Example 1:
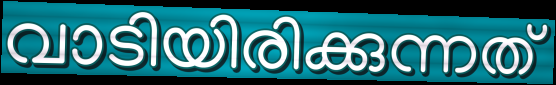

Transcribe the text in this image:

വാടിയിരിക്കുന്നത്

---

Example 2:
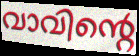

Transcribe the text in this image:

വാവിന്റെ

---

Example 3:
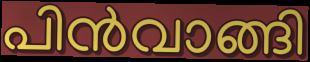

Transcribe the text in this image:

പിൻവാങ്ങി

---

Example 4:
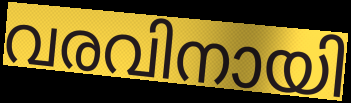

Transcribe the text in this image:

വരവിനായി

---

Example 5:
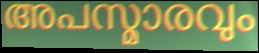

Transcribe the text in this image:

അപസ്മാരവും